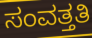
ಸಂವತ್ತತಿ